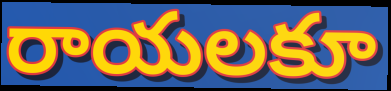
రాయలకూ